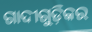
ଗାଦୀଗୁଡ଼ିକର